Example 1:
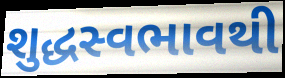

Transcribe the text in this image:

શુદ્ધસ્વભાવથી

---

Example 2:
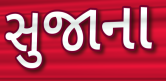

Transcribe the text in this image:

સુજાના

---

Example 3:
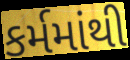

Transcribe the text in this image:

કર્મમાંથી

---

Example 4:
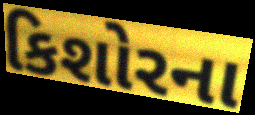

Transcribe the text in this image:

કિશોરના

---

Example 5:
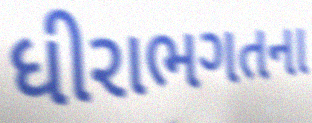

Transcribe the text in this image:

ધીરાભગતના